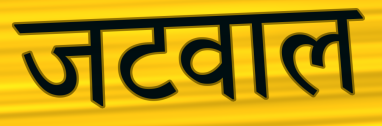
जटवाल